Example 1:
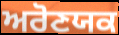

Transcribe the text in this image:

ਅਰੋਣਯਕ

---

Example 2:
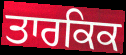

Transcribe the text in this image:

ਤਾਰਕਿਕ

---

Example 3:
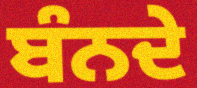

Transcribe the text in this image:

ਬੰਨਦੇ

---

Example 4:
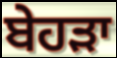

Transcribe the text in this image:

ਬੇਹੜਾ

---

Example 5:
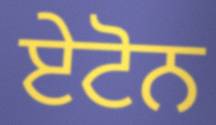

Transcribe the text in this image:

ਏਟੋਨ